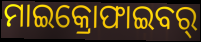
ମାଇକ୍ରୋଫାଇବର୍